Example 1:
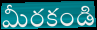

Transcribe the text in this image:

మీరకండి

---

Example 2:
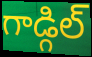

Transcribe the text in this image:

గాడ్గిల్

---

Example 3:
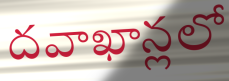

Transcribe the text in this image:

దవాఖాన్లలో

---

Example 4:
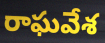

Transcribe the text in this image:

రాఘవేశ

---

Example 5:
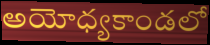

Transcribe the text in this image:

అయోధ్యకాండలో